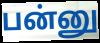
பன்னு